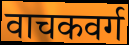
वाचकवर्ग